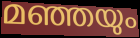
മഞ്ഞയും